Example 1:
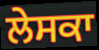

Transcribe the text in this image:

ਲੇਸਕਾ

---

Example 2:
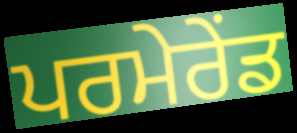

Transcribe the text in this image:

ਪਰਮੇਰੇਂਡ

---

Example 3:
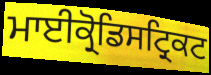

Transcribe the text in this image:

ਮਾਈਕ੍ਰੋਡਿਸਟ੍ਰਿਕਟ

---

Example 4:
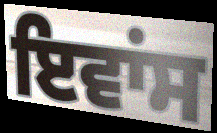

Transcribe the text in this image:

ਇਵਾਂਸ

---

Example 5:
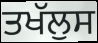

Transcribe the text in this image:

ਤਖੱਲੁਸ